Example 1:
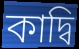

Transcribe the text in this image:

কাদ্বি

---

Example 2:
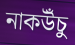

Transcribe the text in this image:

নাকউঁচু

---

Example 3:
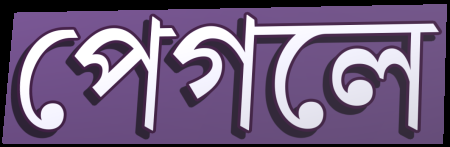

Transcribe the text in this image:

পেগলে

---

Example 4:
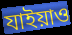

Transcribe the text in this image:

যাইয়াও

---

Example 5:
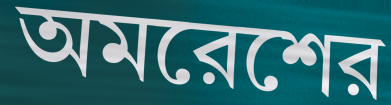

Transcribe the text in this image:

অমরেশের